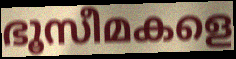
ഭൂസീമകളെ